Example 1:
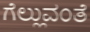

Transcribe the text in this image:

ಗೆಲ್ಲುವಂತೆ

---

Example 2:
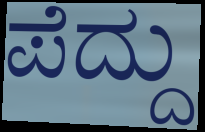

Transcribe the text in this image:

ಪೆದ್ದು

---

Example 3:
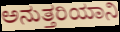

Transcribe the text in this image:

ಅನುತ್ತರಿಯಾನಿ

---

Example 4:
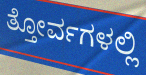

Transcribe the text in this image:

ತ್ತೋರ್ವಗಳಲ್ಲಿ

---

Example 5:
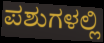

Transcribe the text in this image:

ಪಶುಗಳಲ್ಲಿ